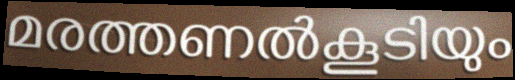
മരത്തണൽകൂടിയും